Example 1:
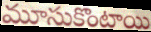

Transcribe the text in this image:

మూసుకొంటాయి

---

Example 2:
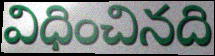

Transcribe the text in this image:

విధించినది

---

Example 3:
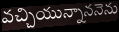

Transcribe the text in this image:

వచ్చియున్నాననెను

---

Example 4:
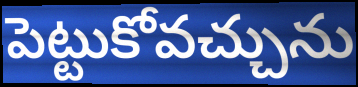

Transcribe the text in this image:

పెట్టుకోవచ్చును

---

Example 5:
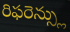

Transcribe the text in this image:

రిఫరెన్స్లు